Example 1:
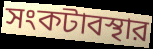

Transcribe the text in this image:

সংকটাবস্থার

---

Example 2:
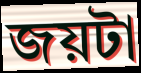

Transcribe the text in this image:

জয়টা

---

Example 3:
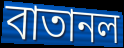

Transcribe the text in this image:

বাতানল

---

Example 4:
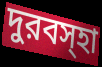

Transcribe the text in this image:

দুরবস্হা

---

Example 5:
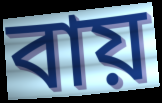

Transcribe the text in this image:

বায়